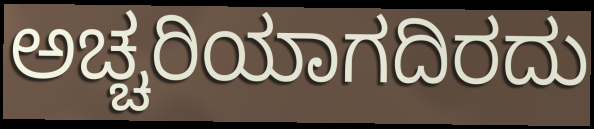
ಅಚ್ಚರಿಯಾಗದಿರದು